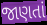
જાણતાં